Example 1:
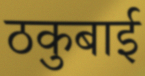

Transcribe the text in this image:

ठकुबाई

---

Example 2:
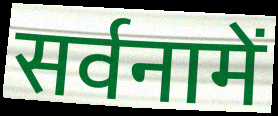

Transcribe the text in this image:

सर्वनामें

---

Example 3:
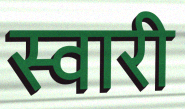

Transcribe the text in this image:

स्वारी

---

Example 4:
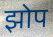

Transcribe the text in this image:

झोप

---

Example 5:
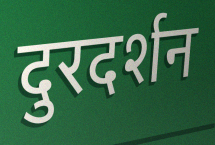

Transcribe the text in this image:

दुरदर्शन